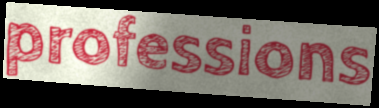
professions